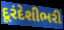
દૂરંદેશીભરી